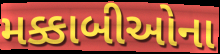
મક્કાબીઓના